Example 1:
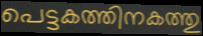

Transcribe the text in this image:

പെട്ടകത്തിനകത്തു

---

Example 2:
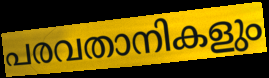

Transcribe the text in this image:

പരവതാനികളും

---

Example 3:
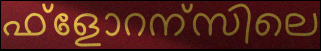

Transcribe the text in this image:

ഫ്ളോറന്സിലെ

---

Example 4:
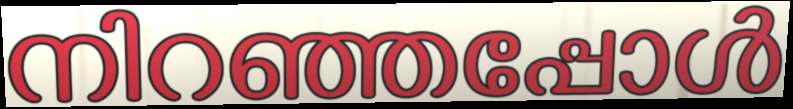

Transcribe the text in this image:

നിറഞ്ഞപ്പോൾ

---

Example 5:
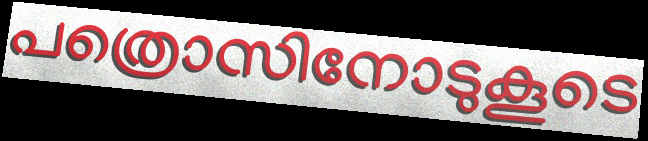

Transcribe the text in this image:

പത്രൊസിനോടുകൂടെ